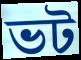
ভট